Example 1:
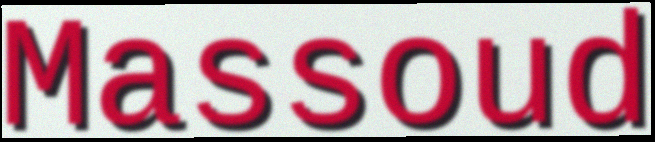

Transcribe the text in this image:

Massoud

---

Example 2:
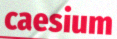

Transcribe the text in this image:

caesium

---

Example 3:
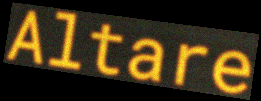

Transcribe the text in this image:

Altare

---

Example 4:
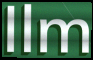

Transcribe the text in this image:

Ilm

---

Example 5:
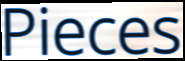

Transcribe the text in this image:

Pieces